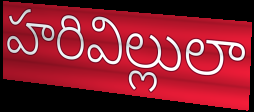
హరివిల్లులా